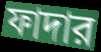
ফাদার